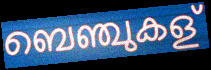
ബെഞ്ചുകള്